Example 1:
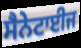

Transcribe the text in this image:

ਸੈਨੇਟਾਈਜ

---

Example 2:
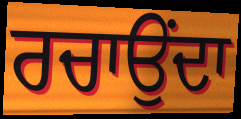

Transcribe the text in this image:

ਰਚਾਉਂਦਾ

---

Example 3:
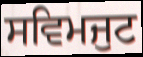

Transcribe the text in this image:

ਸਵਿਮਜੁਟ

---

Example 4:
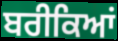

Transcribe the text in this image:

ਬਰੀਕਿਆਂ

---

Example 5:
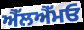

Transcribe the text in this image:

ਐੱਲਐੱਮਓ